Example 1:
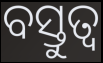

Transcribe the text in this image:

ବସ୍ତୁତ୍ୱ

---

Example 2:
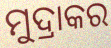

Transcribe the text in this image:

ମୁଦ୍ରାକର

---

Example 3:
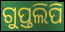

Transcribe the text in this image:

ଗୁପ୍ତଲିପି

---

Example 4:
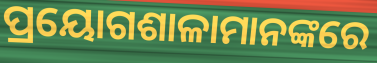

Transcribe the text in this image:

ପ୍ରୟୋଗଶାଳାମାନଙ୍କରେ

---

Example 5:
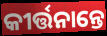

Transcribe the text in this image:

କୀର୍ତ୍ତନାନ୍ତେ